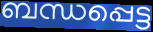
ബന്ധപ്പെട്ട